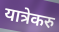
यात्रेकरु